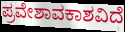
ಪ್ರವೇಶಾವಕಾಶವಿದೆ